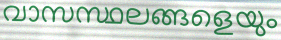
വാസസ്ഥലങ്ങളെയും